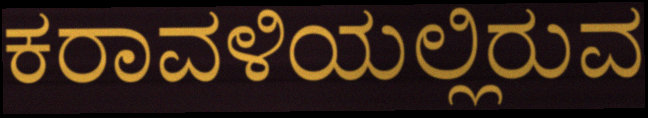
ಕರಾವಳಿಯಲ್ಲಿರುವ